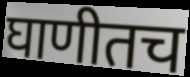
घाणीतच